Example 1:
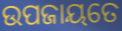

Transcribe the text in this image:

ଉପଜାୟତେ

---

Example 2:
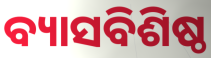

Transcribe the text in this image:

ବ୍ୟାସବିଶିଷ୍ଠ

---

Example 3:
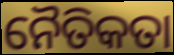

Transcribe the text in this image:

ନୈତିକତା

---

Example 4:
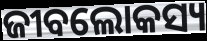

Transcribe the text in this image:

ଜୀବଲୋକସ୍ୟ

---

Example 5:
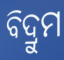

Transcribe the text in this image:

ବିଦ୍ରୁମ